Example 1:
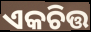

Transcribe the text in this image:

ଏକଚିତ୍ତ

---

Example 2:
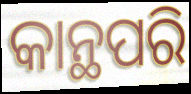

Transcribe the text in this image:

କାନ୍ଥପରି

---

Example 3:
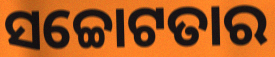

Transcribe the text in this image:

ସଚ୍ଚୋଟତାର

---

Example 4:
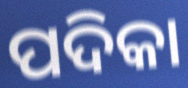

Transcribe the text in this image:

ପଦିକା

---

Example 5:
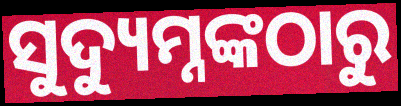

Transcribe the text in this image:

ସୁଦ୍ୟୁମ୍ନଙ୍କଠାରୁ